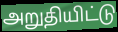
அறுதியிட்டு